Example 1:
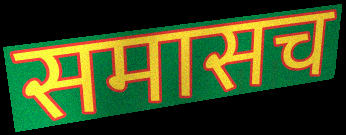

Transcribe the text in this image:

समासच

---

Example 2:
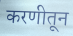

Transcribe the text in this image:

करणीतून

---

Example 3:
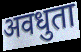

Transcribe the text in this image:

अवधुता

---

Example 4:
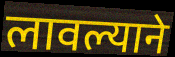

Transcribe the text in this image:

लावल्याने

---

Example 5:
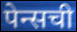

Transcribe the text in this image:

पेन्सची